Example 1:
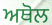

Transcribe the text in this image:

ਅਥੋਲ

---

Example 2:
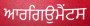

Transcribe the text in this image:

ਆਰਗਿਉਮੈਂਟਸ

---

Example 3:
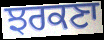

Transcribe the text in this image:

ਝਰਕਣਾ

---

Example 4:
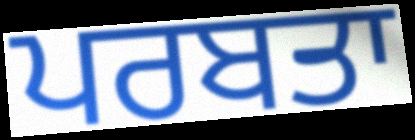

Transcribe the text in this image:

ਪਰਬਤਾ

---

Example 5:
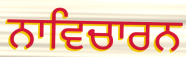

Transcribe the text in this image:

ਨਾਵਿਚਾਰਨ